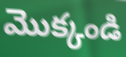
మొక్కండి